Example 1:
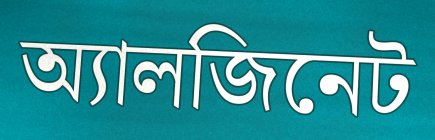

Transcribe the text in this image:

অ্যালজিনেট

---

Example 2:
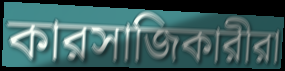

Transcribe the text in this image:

কারসাজিকারীরা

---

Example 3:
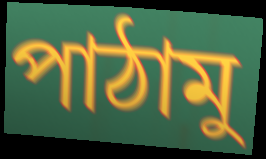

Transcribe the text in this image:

পাঠামু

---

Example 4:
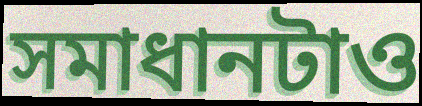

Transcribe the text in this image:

সমাধানটাও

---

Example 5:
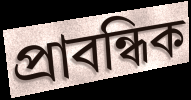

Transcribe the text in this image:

প্রাবন্ধিক